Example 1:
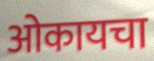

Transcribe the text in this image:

ओकायचा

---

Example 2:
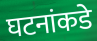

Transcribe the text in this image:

घटनांकडे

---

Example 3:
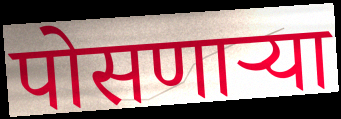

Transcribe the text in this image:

पोसणाऱ्या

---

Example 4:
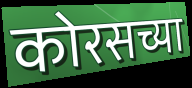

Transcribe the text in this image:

कोरसच्या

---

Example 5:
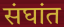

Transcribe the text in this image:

संघांत